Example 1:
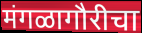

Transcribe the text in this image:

मंगळागौरीचा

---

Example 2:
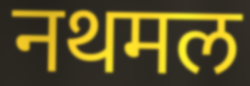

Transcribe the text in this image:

नथमल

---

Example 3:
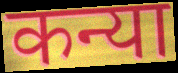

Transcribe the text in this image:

कन्या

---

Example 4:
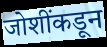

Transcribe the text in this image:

जोशींकडून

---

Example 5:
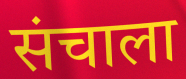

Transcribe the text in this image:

संचाला